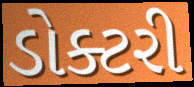
ડોક્ટરી